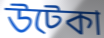
উট্কো